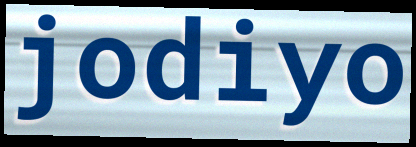
jodiyo